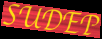
SUDEP